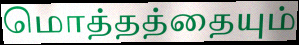
மொத்தத்தையும்